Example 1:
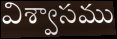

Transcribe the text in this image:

విశ్వాసము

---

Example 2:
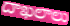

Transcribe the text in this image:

దాఖలాలు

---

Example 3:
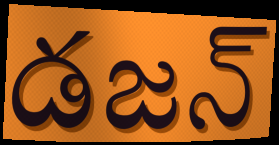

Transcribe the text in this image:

డజన్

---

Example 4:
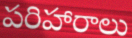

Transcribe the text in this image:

పరిహారాలు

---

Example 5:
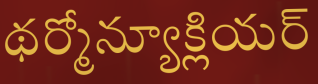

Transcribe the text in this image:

థర్మోన్యూక్లియర్